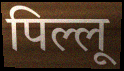
पिल्लू